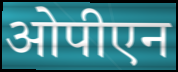
ओपीएन